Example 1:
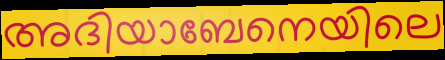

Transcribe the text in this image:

അദിയാബേനെയിലെ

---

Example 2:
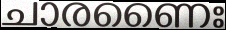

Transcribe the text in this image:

ചാരണൈഃ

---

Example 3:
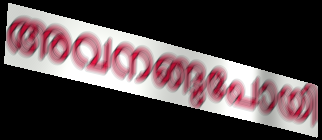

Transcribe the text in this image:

അവനങ്ങുപോയി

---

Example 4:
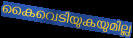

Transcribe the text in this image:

കൈവെടിയുകയുമില്ല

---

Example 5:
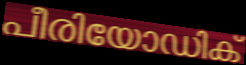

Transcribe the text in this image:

പീരിയോഡിക്